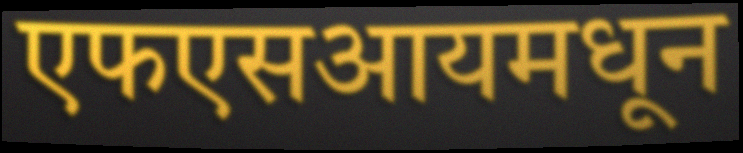
एफएसआयमधून